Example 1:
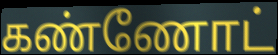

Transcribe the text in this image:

கண்ணோட்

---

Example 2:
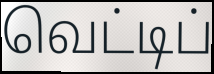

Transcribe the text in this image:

வெட்டிப்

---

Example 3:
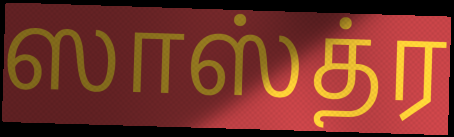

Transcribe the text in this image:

ஸாஸ்த்ர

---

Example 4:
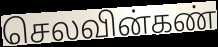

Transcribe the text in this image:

செலவின்கண்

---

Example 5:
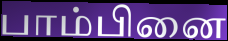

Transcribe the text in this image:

பாம்பினை